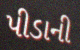
પીડાની